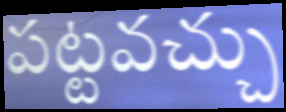
పట్టవచ్చు